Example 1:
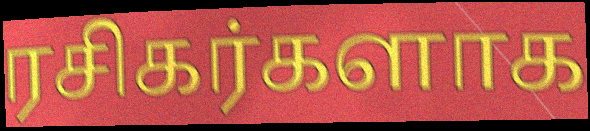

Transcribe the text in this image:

ரசிகர்களாக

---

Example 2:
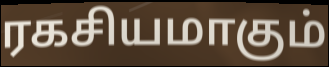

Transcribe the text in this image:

ரகசியமாகும்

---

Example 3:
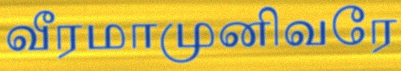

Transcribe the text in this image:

வீரமாமுனிவரே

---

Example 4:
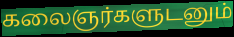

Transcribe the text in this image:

கலைஞர்களுடனும்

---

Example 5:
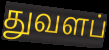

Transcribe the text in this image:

துவளப்